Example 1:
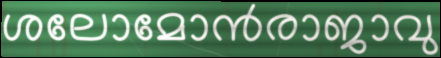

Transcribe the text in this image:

ശലോമോൻരാജാവു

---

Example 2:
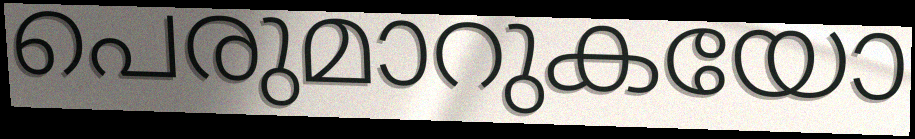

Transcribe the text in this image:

പെരുമാറുകയോ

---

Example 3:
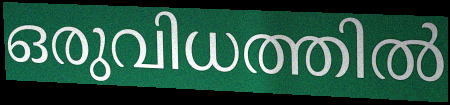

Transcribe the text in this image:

ഒരുവിധത്തിൽ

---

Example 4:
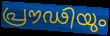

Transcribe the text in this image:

പ്രൗഢിയും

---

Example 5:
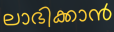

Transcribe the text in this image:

ലാഭിക്കാൻ